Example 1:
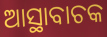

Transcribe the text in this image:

ଆସ୍ଥାବାଚକ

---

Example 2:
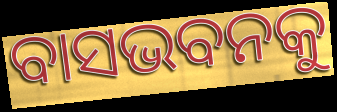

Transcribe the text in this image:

ବାସଭବନକୁ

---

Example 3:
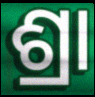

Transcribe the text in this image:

ଶ୍ରା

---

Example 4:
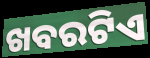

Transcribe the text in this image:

ଖବରଟିଏ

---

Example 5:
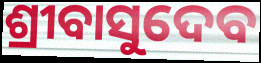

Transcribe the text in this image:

ଶ୍ରୀବାସୁଦେବ